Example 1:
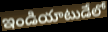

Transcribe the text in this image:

ఇండియాటుడేలో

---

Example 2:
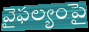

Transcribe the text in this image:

వైఫల్యంపై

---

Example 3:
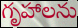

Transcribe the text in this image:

గృహాలను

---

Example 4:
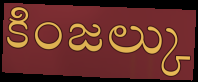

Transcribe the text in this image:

కింజల్కు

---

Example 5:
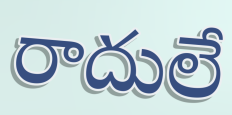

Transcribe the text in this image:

రాదులే